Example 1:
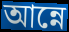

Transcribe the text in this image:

আন্নে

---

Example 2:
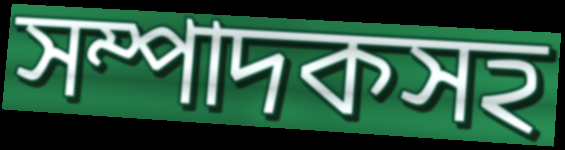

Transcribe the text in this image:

সম্পাদকসহ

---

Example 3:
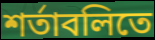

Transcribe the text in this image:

শর্তাবলিতে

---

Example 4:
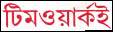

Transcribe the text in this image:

টিমওয়ার্কই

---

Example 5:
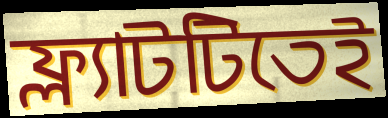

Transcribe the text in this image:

ফ্ল্যাটটিতেই